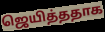
ஜெயித்ததாக